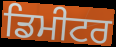
ਡਿਮੀਟਰ